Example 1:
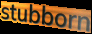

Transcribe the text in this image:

stubborn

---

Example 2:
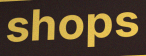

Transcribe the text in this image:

shops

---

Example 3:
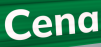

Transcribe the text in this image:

Cena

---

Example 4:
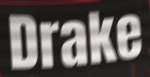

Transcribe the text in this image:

Drake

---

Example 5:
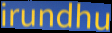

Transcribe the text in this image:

irundhu